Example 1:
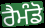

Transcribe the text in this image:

ਰੈਮੰਡੋ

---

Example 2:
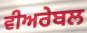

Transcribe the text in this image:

ਵੀਅਰੇਬਲ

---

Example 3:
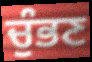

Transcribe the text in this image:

ਚੁੰਭਣ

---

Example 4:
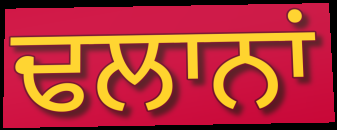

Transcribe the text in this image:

ਢਲਾਨਾਂ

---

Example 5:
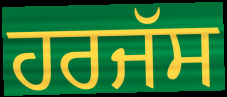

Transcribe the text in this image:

ਹਰਜੱਸ